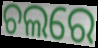
ଚଲରେ